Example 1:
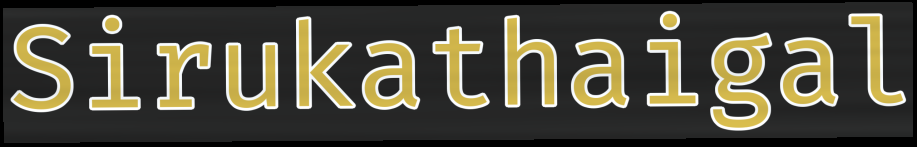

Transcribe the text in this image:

Sirukathaigal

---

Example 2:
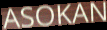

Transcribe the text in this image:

ASOKAN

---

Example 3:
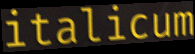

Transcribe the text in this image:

italicum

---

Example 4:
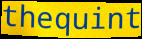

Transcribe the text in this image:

thequint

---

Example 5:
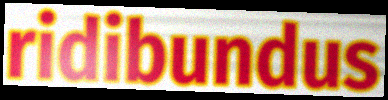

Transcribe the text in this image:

ridibundus